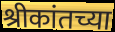
श्रीकांतच्या